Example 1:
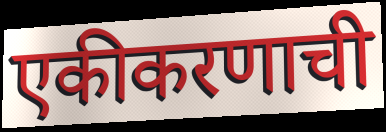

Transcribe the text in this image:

एकीकरणाची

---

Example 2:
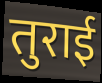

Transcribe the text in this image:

तुराई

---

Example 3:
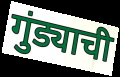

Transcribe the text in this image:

गुंड्याची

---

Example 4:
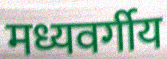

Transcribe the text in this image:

मध्यवर्गीय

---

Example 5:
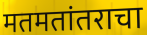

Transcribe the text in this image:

मतमतांतराचा